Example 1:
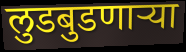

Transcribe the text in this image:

लुडबुडणाऱ्या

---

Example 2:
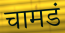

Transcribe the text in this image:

चामडं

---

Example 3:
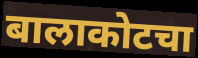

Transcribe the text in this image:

बालाकोटचा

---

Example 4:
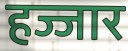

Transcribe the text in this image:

हज्जार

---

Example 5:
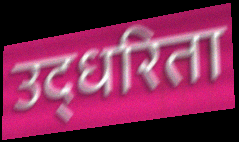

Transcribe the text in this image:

उद्धरिता